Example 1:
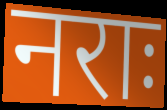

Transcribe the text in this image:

नराः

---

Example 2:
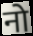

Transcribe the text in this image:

नो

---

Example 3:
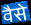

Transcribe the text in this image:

वैसे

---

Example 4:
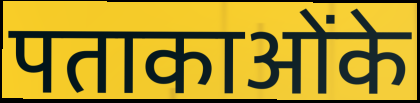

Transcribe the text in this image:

पताकाओंके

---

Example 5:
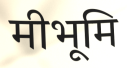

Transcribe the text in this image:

मीभूमि